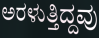
ಅರಳುತ್ತಿದ್ದವು